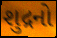
શુદ્રનો